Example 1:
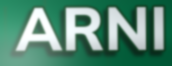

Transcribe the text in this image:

ARNI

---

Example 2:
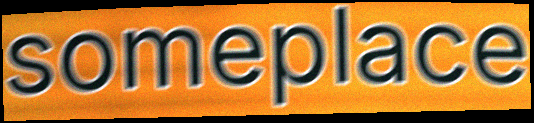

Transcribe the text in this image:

someplace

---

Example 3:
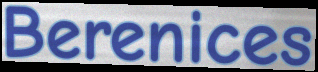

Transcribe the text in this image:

Berenices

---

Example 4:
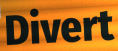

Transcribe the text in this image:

Divert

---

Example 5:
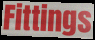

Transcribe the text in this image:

Fittings